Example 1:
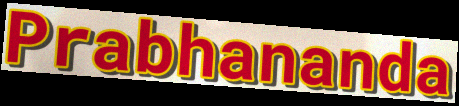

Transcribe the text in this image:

Prabhananda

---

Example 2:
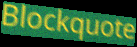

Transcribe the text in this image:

Blockquote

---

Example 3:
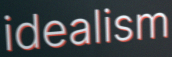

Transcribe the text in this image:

idealism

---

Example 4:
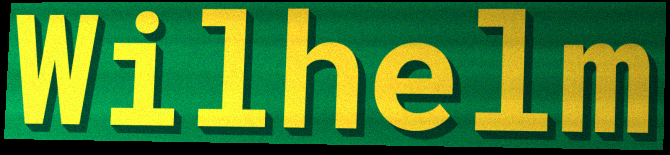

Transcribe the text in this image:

Wilhelm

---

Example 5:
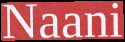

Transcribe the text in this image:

Naani